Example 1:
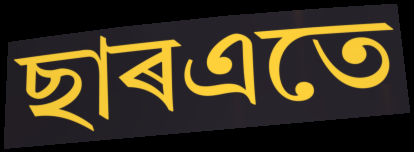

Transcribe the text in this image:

ছাৰএতে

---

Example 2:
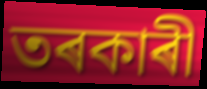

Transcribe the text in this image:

তৰকাৰী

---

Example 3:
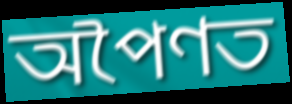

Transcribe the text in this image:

অপৈণত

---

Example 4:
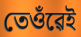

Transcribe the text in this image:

তেওঁৱেই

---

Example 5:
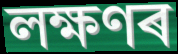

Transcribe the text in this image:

লক্ষণৰ